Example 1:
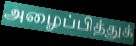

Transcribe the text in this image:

அழைப்பித்துக்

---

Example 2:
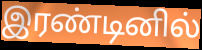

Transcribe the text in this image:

இரண்டினில்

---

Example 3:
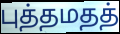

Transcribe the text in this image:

புத்தமதத்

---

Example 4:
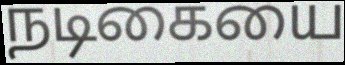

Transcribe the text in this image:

நடிகையை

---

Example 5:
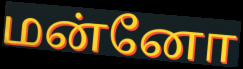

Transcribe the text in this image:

மன்னோ